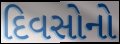
દિવસોનો